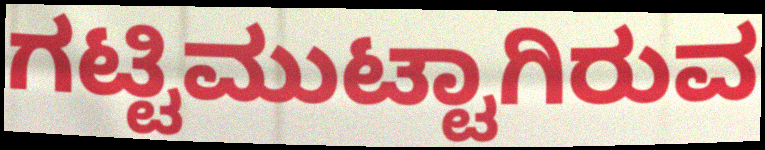
ಗಟ್ಟಿಮುಟ್ಟಾಗಿರುವ